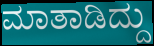
ಮಾತಾಡಿದ್ದು